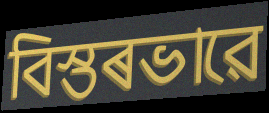
বিস্তৰভাৱে